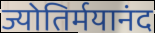
ज्योतिर्मयानंद